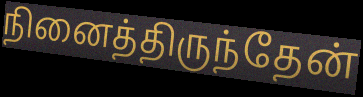
நினைத்திருந்தேன்